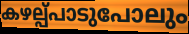
കഴല്പ്പാടുപോലും